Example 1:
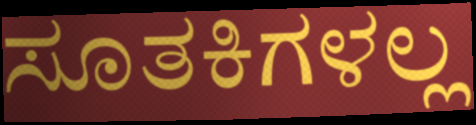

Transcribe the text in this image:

ಸೂತಕಿಗಳಲ್ಲ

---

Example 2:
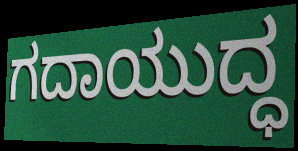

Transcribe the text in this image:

ಗದಾಯುದ್ಧ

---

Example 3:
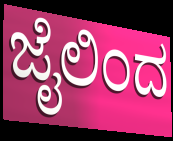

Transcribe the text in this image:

ಜೈಲಿಂದ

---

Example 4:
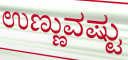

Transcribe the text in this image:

ಉಣ್ಣುವಷ್ಟು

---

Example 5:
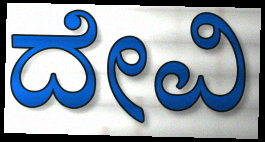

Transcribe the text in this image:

ದೇವಿ